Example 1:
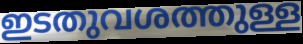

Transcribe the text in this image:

ഇടതുവശത്തുള്ള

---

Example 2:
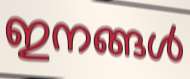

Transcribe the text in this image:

ഇനങ്ങൾ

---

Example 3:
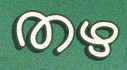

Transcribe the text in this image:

തഴ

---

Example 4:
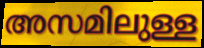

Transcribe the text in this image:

അസമിലുള്ള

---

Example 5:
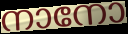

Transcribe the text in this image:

നാനോ